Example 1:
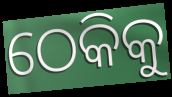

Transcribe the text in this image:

ଠେକିକୁ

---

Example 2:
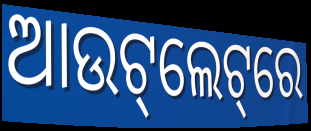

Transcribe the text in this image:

ଆଉଟ୍‌ଲେଟ୍‌ରେ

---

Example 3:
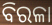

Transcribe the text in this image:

ବିରଳା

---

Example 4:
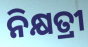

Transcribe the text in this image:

ନିକ୍ଷତ୍ରୀ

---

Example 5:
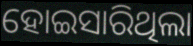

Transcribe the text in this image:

ହୋଇସାରିଥିଲା